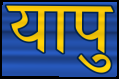
यापु